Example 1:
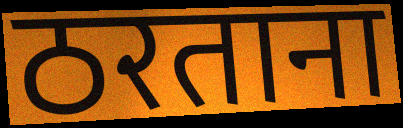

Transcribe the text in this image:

ठरताना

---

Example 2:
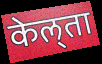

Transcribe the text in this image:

केल्ता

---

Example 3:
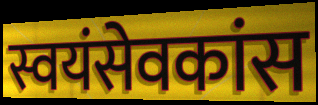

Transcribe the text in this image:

स्वयंसेवकांस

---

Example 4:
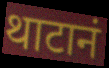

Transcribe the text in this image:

थाटानं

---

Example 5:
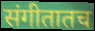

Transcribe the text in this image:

संगीतातच